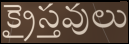
క్రైస్తవులు